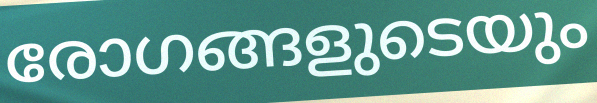
രോഗങ്ങളുടെയും